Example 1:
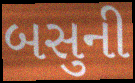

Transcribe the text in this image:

બસુની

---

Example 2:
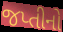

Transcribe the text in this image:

જપ્તીનો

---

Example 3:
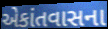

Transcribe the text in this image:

એકાંતવાસના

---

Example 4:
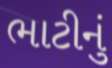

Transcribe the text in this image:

ભાટીનું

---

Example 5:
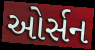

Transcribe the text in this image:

ઓર્સન